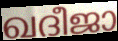
ഖദീജാ